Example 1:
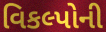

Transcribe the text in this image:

વિકલ્પોની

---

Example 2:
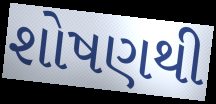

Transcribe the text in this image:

શોષણથી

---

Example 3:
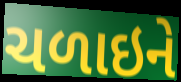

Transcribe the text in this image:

ચળાઇને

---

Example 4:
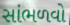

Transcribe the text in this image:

સાંભળવો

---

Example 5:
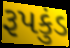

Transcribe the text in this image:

રૂપકુંડ